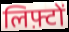
लिफ़्टों